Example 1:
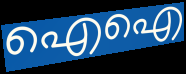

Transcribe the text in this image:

ഐഐ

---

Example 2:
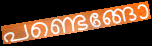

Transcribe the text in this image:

പണ്ടെങ്ങോ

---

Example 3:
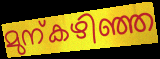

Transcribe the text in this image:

മുന്കഴിഞ്ഞ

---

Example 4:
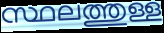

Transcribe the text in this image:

സ്ഥലത്തുള്ള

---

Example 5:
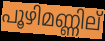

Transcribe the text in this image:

പൂഴിമണ്ണില്